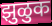
झुळुक